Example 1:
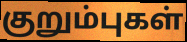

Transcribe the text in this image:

குறும்புகள்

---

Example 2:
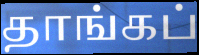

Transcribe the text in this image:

தாங்கப்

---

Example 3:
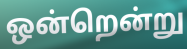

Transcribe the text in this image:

ஒன்றென்று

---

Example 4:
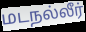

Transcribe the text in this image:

மடநல்லீர்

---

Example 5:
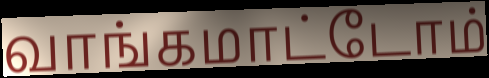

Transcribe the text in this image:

வாங்கமாட்டோம்